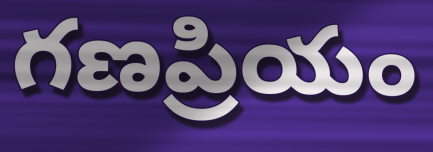
గణప్రియం